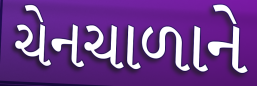
ચેનચાળાને